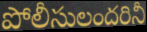
పోలీసులందరినీ